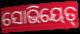
ସୋଭିୟେତ୍